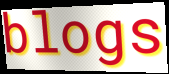
blogs